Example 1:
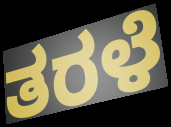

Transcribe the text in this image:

ತರಳೆ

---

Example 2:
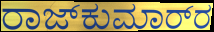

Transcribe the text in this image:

ರಾಜ್‌ಕುಮಾರ್‌ರ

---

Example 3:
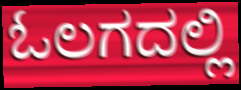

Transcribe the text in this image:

ಓಲಗದಲ್ಲಿ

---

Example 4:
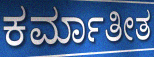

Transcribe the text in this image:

ಕರ್ಮಾತೀತ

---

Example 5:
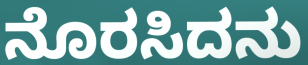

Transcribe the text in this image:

ನೊರಸಿದನು